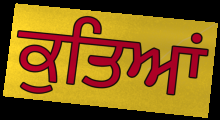
ਕੁਤਿਆਂ